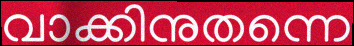
വാക്കിനുതന്നെ